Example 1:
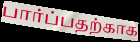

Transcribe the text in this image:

பார்ப்பதற்காக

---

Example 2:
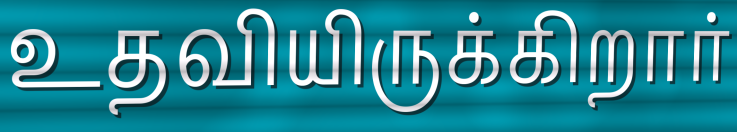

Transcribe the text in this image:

உதவியிருக்கிறார்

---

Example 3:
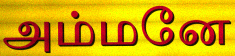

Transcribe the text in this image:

அம்மனே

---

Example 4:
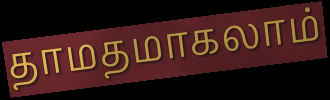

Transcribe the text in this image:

தாமதமாகலாம்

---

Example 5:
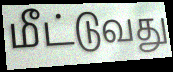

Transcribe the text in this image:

மீட்டுவது